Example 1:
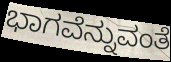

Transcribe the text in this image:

ಭಾಗವೆನ್ನುವಂತೆ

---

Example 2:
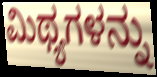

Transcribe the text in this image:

ಮಿಥ್ಯಗಳನ್ನು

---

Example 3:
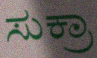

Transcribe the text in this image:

ಸುಕ್ರಾ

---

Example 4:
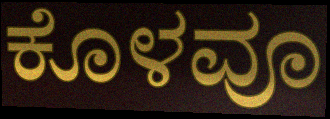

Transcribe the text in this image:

ಕೊಳವೂ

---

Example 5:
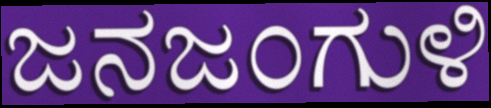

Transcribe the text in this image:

ಜನಜಂಗುಳಿ